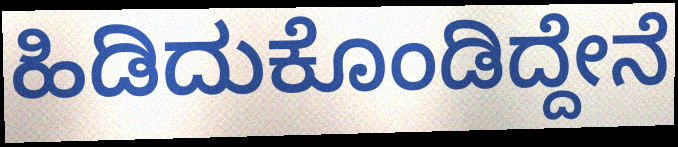
ಹಿಡಿದುಕೊಂಡಿದ್ದೇನೆ